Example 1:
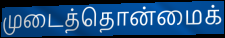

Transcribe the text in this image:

முடைத்தொன்மைக்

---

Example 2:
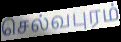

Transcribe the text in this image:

செல்வபுரம்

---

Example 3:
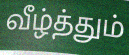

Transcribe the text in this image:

வீழ்த்தும்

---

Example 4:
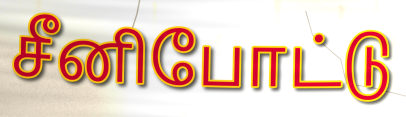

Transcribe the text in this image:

சீனிபோட்டு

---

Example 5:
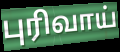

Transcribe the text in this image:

புரிவாய்